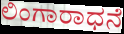
ಲಿಂಗಾರಾಧನೆ